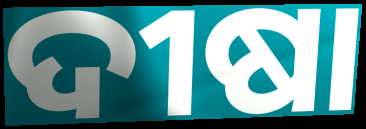
ଦୀଷା